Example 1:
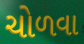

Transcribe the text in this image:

ચોળવા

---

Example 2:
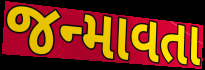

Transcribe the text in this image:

જન્માવતા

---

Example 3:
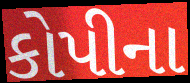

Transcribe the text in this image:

કોપીના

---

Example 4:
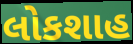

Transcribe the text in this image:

લોકશાહ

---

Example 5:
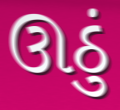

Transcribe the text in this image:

ઊઠું